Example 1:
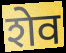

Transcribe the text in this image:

शेव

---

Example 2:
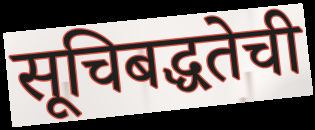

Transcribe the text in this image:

सूचिबद्धतेची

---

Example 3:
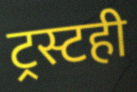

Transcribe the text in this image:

ट्रस्टही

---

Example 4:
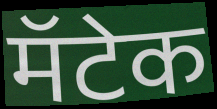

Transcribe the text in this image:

मॅटेक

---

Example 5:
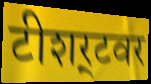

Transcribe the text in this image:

टीशर्टवर